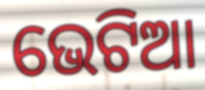
ଭେଟିଆ